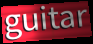
guitar